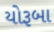
યોરૂબા